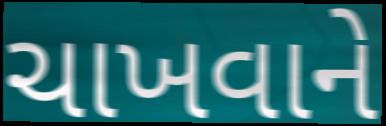
ચાખવાને